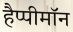
हैप्पीमॉन